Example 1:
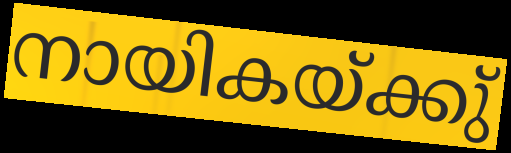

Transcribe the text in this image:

നായികയ്ക്കു്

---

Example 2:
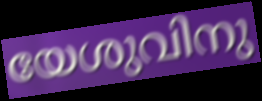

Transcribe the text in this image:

യേശുവിനു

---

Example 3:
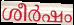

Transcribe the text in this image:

ശീർഷം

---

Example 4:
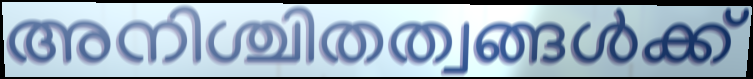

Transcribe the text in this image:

അനിശ്ചിതത്വങ്ങൾക്ക്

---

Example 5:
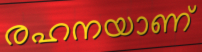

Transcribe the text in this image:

രഹനയാണ്